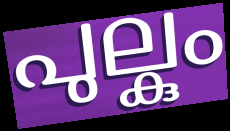
പുല്കും